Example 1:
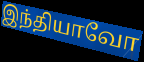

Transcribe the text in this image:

இந்தியாவோ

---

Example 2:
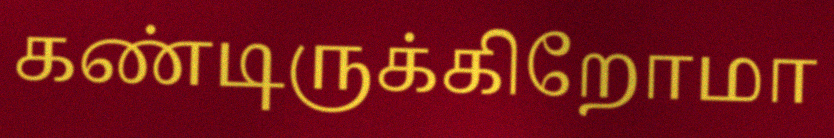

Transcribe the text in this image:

கண்டிருக்கிறோமா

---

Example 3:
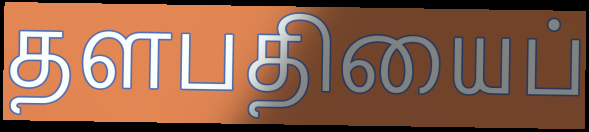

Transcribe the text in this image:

தளபதியைப்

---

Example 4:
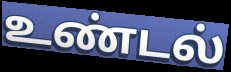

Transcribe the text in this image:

உண்டல்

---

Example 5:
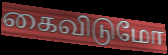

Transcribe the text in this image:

கைவிடுமோ